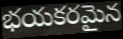
భయకరమైన